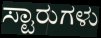
ಸ್ಟಾರುಗಳು